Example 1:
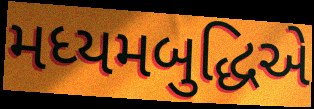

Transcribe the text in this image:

મધ્યમબુદ્ધિએ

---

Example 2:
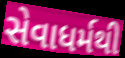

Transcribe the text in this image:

સેવાધર્મથી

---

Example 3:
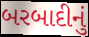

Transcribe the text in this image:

બરબાદીનું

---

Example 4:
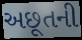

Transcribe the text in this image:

અછૂતની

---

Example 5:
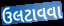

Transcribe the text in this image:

ઉલટાવવા